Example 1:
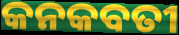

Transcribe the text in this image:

କନକବତୀ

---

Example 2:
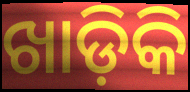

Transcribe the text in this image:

ଖାଡ଼ିକି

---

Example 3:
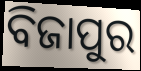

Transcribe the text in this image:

ବିଜାପୁର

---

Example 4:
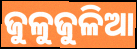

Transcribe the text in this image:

ଜୁଳୁଜୁଳିଆ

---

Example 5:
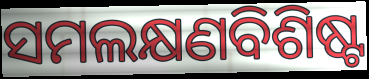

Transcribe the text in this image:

ସମଲକ୍ଷଣବିଶିଷ୍ଟ